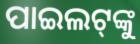
ପାଇଲଟ୍‌ଙ୍କୁ